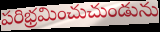
పరిభ్రమించుచుండును